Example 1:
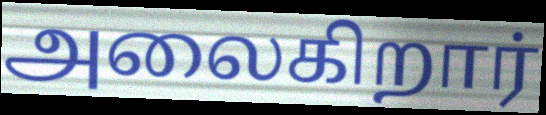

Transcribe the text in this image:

அலைகிறார்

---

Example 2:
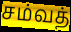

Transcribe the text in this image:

சம்வத்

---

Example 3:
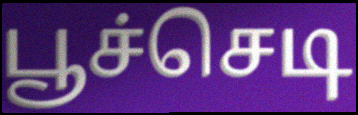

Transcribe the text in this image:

பூச்செடி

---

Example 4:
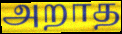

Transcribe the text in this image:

அறாத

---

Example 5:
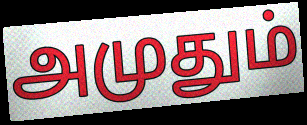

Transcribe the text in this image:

அமுதும்